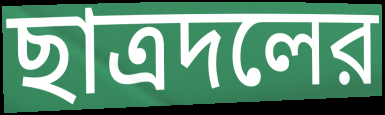
ছাত্রদলের